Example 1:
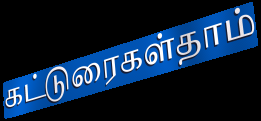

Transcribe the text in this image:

கட்டுரைகள்தாம்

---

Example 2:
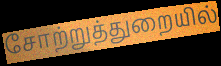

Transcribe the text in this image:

சோற்றுத்துறையில்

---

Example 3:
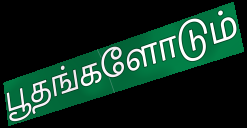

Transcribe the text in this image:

பூதங்களோடும்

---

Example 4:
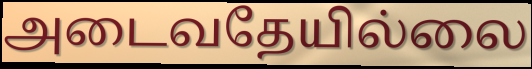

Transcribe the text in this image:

அடைவதேயில்லை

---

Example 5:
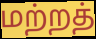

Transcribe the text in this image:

மற்றத்